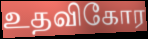
உதவிகோர